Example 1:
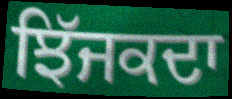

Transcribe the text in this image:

ਝਿੱਜਕਦਾ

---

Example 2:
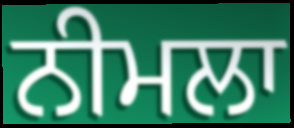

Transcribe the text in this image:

ਨੀਮਲਾ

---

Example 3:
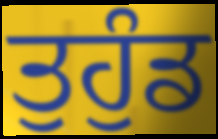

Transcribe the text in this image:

ਤੁਹੁੰਡ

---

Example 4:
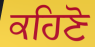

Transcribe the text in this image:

ਕਹਿਣੋ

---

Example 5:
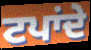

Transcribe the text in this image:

ਟਪਾਂਦੇ